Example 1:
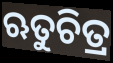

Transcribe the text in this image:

ଋତୁଚିତ୍ର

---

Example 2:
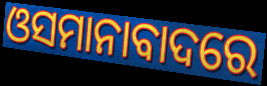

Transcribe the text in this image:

ଓସମାନାବାଦରେ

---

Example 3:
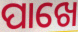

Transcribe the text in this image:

ପାଖେ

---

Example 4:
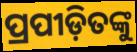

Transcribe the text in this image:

ପ୍ରପୀଡ଼ିତଙ୍କୁ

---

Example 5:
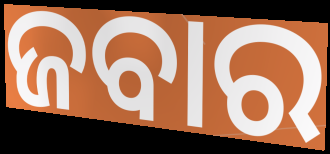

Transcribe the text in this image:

ଜବାର